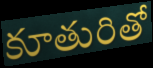
కూతురితో